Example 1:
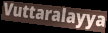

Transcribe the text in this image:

Vuttaralayya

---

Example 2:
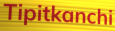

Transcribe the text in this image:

Tipitkanchi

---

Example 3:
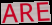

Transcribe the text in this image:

ARE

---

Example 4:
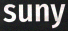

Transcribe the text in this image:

suny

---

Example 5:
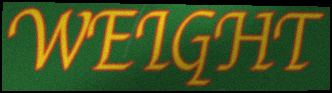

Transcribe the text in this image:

WEIGHT